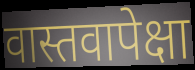
वास्तवापेक्षा